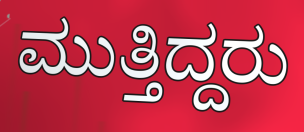
ಮುತ್ತಿದ್ದರು